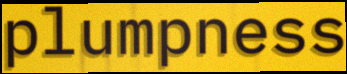
plumpness